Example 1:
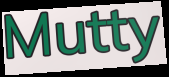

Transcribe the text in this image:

Mutty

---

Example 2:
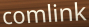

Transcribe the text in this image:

comlink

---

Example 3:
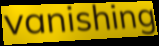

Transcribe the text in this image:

vanishing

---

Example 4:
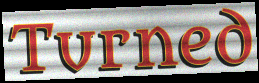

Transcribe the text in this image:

Turned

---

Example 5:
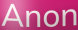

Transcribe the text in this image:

Anon